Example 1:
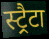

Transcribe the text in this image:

स्ट्रैटा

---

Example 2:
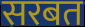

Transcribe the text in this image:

सरबत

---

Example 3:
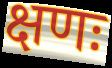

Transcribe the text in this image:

क्षणः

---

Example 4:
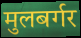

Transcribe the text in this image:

मुलबर्गर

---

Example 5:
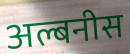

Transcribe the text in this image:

अल्बनीस